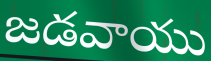
జడవాయు